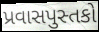
પ્રવાસપુસ્તકો